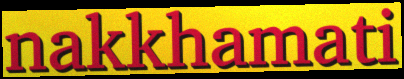
nakkhamati